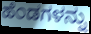
ಹೆಂಡಗಳನ್ನು